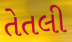
તેતલી